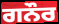
ਗਨੌਰ